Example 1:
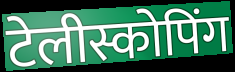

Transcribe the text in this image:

टेलीस्कोपिंग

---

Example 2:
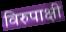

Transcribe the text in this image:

विरुपाक्षी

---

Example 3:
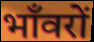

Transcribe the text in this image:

भाँवरों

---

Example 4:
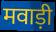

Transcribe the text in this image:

मवाड़ी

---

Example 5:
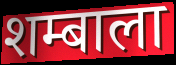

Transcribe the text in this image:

शम्बाला